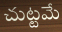
చుట్టమే